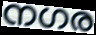
നഗര